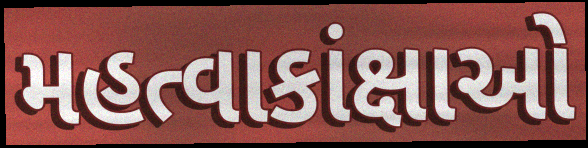
મહત્વાકાંક્ષાઓ